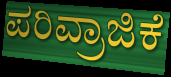
ಪರಿವ್ರಾಜಿಕೆ